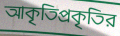
আকৃতিপ্রকৃতির